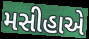
મસીહાએ